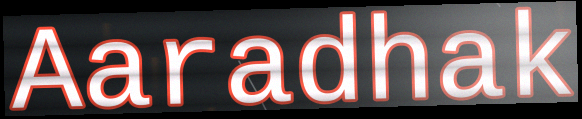
Aaradhak